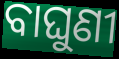
ବାଘୁଣୀ